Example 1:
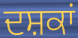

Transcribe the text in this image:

ਦਸ਼ਕਾਂ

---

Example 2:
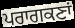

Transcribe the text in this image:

ਪਰਾਗਕਣਾਂ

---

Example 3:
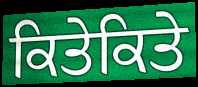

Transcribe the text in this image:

ਕਿਤੇਕਿਤੇ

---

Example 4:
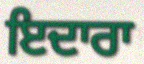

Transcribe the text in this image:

ਇਦਾਰਾ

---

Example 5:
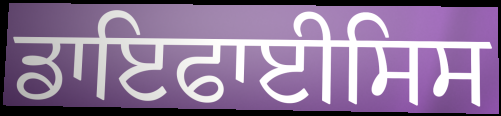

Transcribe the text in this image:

ਡਾਇਫਾਈਸਿਸ